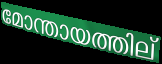
മോന്തായത്തില്